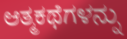
ಆತ್ಮಕಥೆಗಳನ್ನು